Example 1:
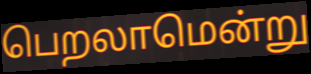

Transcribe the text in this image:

பெறலாமென்று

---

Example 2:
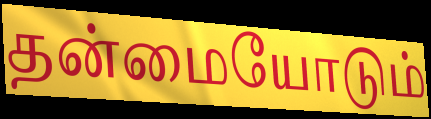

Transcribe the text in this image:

தன்மையோடும்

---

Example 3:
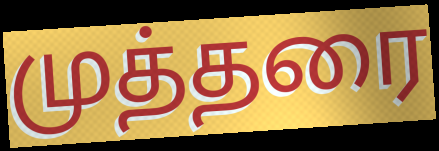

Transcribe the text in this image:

முத்தரை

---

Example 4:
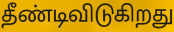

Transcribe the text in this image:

தீண்டிவிடுகிறது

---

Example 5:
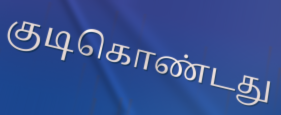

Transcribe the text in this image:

குடிகொண்டது